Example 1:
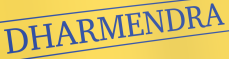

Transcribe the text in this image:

DHARMENDRA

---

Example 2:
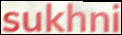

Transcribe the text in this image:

sukhni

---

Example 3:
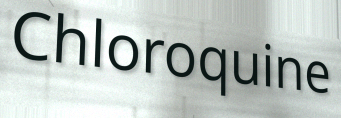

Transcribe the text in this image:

Chloroquine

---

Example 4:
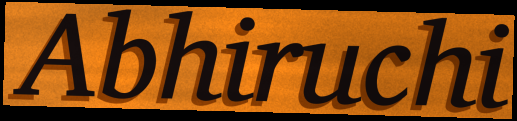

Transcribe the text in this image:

Abhiruchi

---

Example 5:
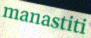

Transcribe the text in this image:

manastiti